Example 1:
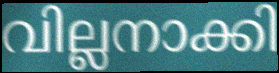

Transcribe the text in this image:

വില്ലനാക്കി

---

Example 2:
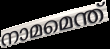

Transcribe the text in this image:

നാമമെന്ത്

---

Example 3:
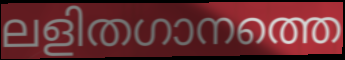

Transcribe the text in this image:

ലളിതഗാനത്തെ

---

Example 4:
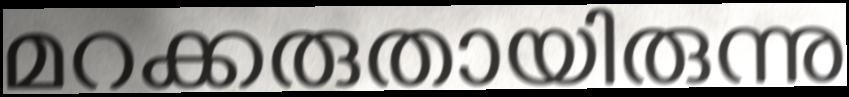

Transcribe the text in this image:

മറക്കരുതായിരുന്നു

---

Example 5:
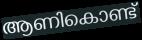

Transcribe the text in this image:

ആണികൊണ്ട്